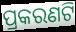
ପ୍ରକରଣଟି